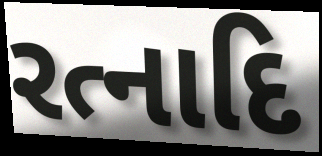
રત્નાદિ